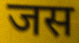
जस